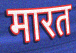
मारत